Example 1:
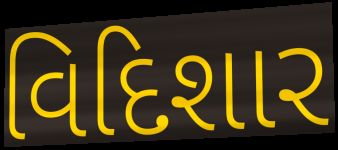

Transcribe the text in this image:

વિદિશાર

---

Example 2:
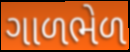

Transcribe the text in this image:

ગાળભેળ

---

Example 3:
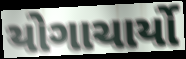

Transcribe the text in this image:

યોગાચાર્યો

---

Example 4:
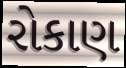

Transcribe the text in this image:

રોકાણ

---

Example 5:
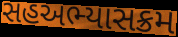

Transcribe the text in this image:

સહઅભ્યાસક્રમ